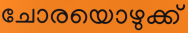
ചോരയൊഴുക്ക്